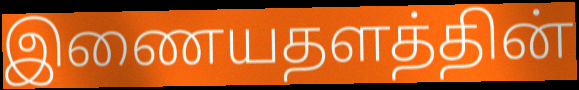
இணையதளத்தின்